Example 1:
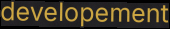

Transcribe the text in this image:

developement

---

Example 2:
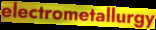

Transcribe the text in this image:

electrometallurgy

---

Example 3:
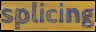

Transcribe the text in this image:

splicing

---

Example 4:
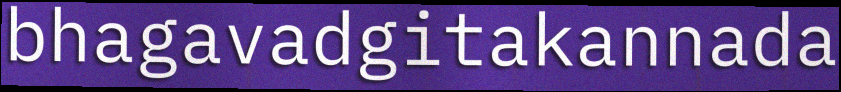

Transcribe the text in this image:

bhagavadgitakannada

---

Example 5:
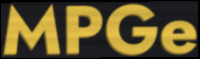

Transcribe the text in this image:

MPGe